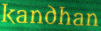
kandhan